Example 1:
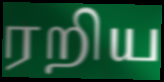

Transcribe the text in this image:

ரறிய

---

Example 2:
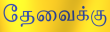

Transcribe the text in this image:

தேவைக்கு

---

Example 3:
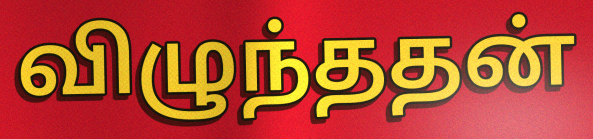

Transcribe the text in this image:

விழுந்ததன்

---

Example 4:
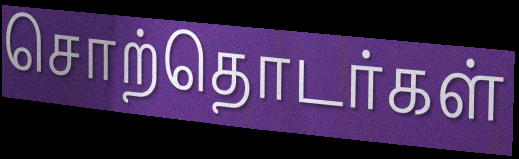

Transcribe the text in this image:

சொற்தொடர்கள்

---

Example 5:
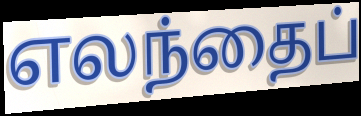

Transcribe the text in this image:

எலந்தைப்